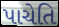
પાચેતિ